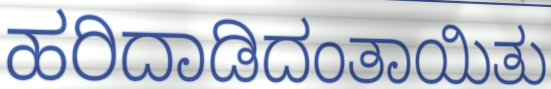
ಹರಿದಾಡಿದಂತಾಯಿತು